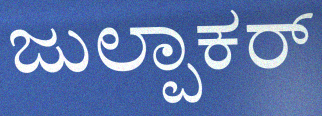
ಜುಲ್ಪಾಕರ್